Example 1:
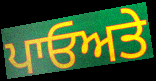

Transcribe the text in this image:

ਪਾਓਅਤੇ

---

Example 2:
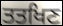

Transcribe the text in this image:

ਤਤਖਿਣ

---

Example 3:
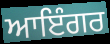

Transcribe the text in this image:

ਆਇੰਗਰ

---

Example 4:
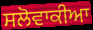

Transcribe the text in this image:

ਸਲੋਵਾਕੀਆ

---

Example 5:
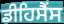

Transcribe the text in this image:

ਡੀਹਿਸੈਂਸ